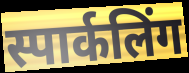
स्पार्कलिंग